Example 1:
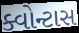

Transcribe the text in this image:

ક્વોન્ટાસ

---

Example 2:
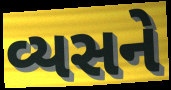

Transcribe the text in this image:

વ્યસને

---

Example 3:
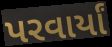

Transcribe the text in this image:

પરવાર્યાં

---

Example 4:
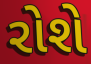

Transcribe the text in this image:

રોશે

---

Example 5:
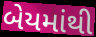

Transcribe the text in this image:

બેયમાંથી